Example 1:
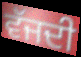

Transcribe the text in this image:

ਵੱਜਦੀ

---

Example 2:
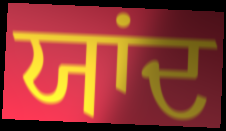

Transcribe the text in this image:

ਯਾਂਦ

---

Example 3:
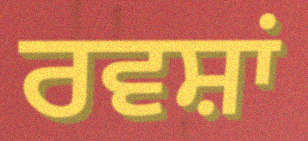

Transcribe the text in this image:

ਰਵਸ਼ਾਂ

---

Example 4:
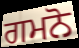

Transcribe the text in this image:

ਗਮਨੋ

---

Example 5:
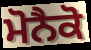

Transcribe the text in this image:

ਮੋਨੈਕੋ